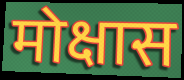
मोक्षास